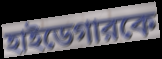
হাইডেগারকে